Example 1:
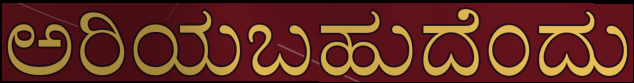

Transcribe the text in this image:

ಅರಿಯಬಹುದೆಂದು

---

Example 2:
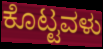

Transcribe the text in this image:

ಕೊಟ್ಟವಳು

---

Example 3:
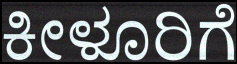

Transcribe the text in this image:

ಕೀಳೂರಿಗೆ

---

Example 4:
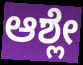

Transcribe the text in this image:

ಆಶ್ಲೇ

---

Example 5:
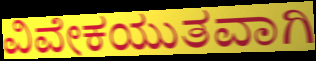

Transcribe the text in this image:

ವಿವೇಕಯುತವಾಗಿ